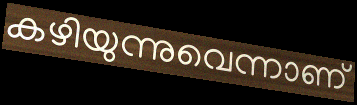
കഴിയുന്നുവെന്നാണ്